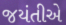
જયંતીએ